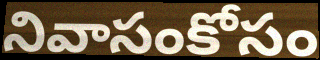
నివాసంకోసం